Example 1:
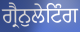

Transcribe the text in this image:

ਗ੍ਰੈਨੁਲੇਟਿੰਗ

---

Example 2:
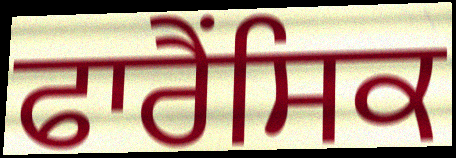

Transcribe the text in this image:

ਫਾਰੈਂਸਿਕ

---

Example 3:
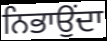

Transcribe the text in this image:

ਨਿਭਾਉਂਦਾ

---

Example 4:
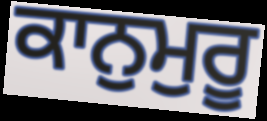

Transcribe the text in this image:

ਕਾਨੁਮੁਰੂ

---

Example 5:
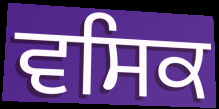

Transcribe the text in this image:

ਵਸਿਕ